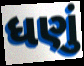
ધણું